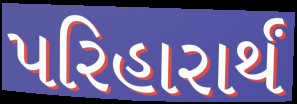
પરિહારાર્થં